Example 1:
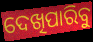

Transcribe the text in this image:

ଦେଖିପାରିବୁ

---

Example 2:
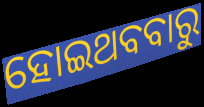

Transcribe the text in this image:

ହୋଇଥବବାରୁ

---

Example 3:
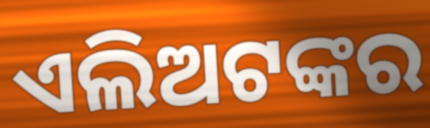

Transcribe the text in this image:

ଏଲିଅଟଙ୍କର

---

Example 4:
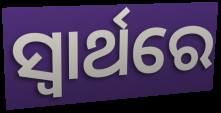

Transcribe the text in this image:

ସ୍ଵାର୍ଥରେ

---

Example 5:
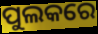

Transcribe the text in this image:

ପୁଲକରେ